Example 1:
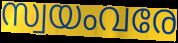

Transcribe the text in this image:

സ്വയംവരേ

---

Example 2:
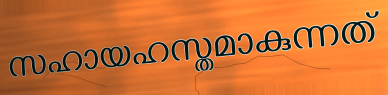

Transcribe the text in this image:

സഹായഹസ്തമാകുന്നത്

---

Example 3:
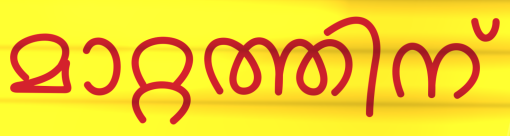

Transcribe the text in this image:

മാറ്റത്തിന്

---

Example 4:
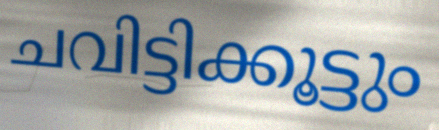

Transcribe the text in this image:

ചവിട്ടിക്കൂട്ടും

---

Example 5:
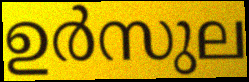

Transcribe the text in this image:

ഉർസുല